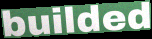
builded